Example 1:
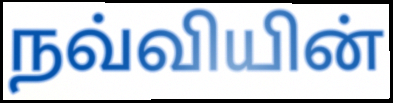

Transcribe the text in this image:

நவ்வியின்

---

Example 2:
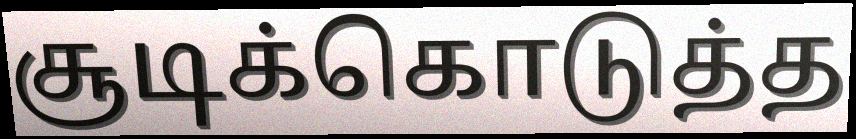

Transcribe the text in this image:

சூடிக்கொடுத்த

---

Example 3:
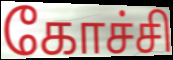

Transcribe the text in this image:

கோச்சி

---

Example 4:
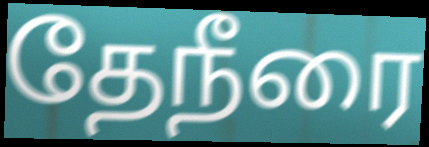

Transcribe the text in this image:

தேநீரை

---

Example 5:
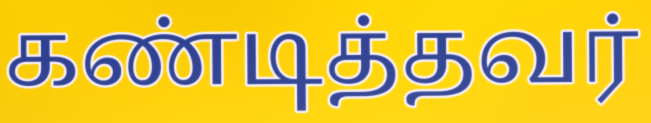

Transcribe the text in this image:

கண்டித்தவர்